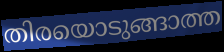
തിരയൊടുങ്ങാത്ത